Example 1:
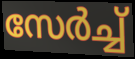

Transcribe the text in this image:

സേർച്ച്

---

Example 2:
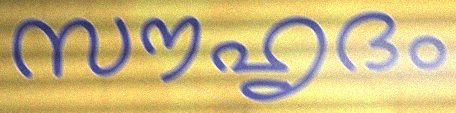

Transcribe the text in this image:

സൗഹൃദം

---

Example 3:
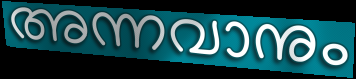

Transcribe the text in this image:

അന്നവാനും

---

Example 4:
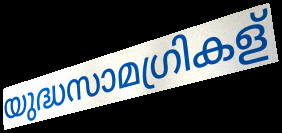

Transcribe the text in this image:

യുദ്ധസാമഗ്രികള്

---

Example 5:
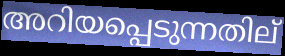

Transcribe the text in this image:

അറിയപ്പെടുന്നതില്